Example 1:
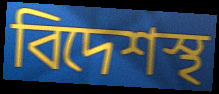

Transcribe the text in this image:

বিদেশস্থ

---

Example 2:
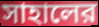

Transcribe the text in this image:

সাহালের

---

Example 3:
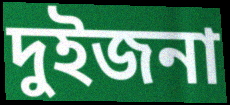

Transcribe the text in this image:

দুইজনা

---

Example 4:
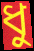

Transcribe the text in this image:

ধু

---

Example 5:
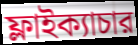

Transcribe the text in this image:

ফ্লাইক্যাচার